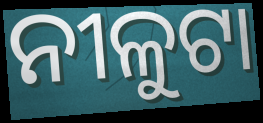
ନୀଳୁଟା